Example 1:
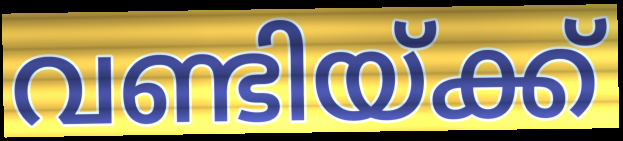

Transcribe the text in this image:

വണ്ടിയ്ക്ക്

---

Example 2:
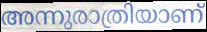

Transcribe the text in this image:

അന്നുരാത്രിയാണ്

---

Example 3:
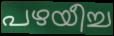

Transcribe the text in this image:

പഴയീച്ച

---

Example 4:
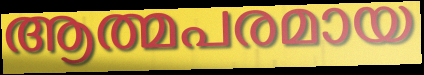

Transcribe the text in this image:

ആത്മപരമായ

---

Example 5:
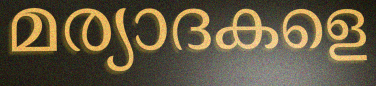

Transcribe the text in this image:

മര്യാദകളെ